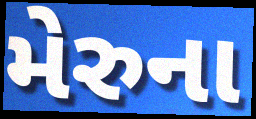
મેરુના